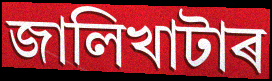
জালিখাটাৰ